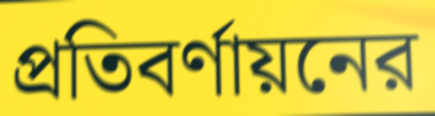
প্রতিবর্ণায়নের